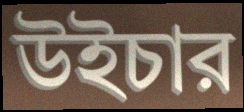
উইচার